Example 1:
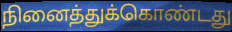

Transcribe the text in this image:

நினைத்துக்கொண்டது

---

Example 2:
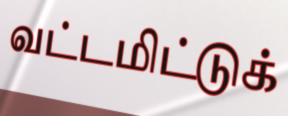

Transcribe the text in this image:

வட்டமிட்டுக்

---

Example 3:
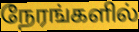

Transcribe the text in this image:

நேரங்களில்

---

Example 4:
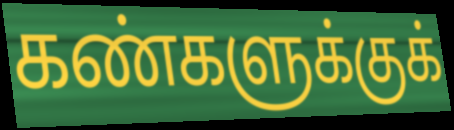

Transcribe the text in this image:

கண்களுக்குக்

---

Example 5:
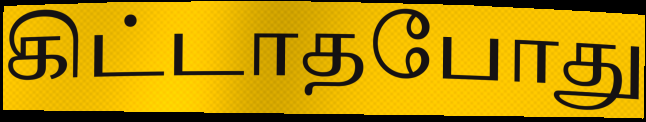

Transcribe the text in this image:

கிட்டாதபோது